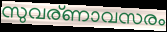
സുവര്ണാവസരം